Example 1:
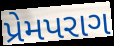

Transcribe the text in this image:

પ્રેમપરાગ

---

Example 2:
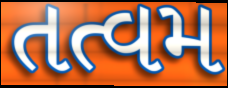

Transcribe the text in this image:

તત્વમ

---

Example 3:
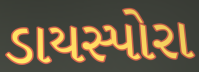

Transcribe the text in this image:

ડાયસ્પોરા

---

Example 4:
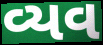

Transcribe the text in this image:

વ્યવ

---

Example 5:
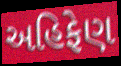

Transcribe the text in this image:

અહિફેણ